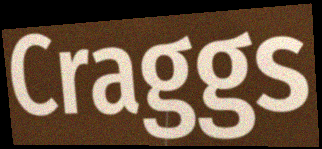
Craggs